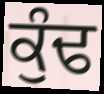
ਕੁੰਢ